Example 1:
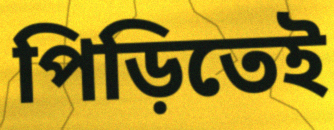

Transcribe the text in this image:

পিড়িতেই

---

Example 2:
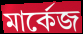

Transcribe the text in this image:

মার্কেজ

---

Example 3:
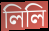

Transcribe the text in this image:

লিলি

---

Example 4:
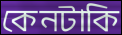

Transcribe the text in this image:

কেনটাকি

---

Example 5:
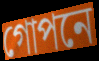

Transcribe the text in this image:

গোপনে